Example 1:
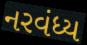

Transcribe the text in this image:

નરવંધ્ય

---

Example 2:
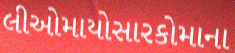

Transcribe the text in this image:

લીઓમાયોસારકોમાના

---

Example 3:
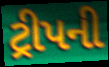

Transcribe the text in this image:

ટ્રીપની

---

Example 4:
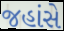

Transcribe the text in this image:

જહાંસે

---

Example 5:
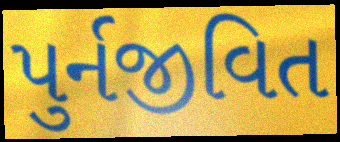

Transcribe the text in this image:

પુર્નજીવિત